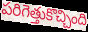
పరిగెత్తుకొచ్చింది